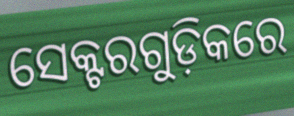
ସେକ୍ଟରଗୁଡ଼ିକରେ